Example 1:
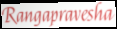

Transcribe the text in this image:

Rangapravesha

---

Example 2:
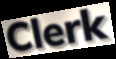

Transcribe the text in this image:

Clerk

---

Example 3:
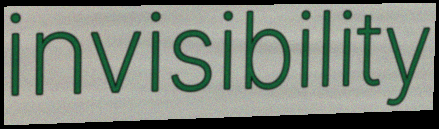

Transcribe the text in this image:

invisibility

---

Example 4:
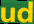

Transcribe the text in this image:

ud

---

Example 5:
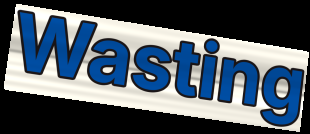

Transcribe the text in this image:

Wasting